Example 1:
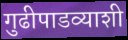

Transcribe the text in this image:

गुढीपाडव्याशी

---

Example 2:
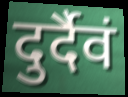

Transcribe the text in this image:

दुर्दैवं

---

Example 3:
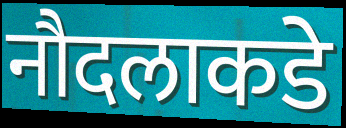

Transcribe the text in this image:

नौदलाकडे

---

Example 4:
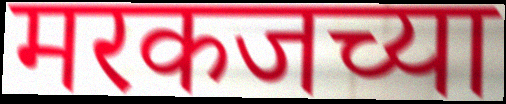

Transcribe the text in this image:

मरकजच्या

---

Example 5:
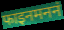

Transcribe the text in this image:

फाइनमननं